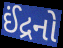
ઈંદ્રનો